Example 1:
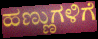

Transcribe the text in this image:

ಹಣ್ಣುಗಳಿಗೆ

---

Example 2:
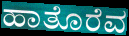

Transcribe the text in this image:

ಹಾತೊರೆವ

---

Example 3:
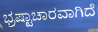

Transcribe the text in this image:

ಭ್ರಷ್ಟಾಚಾರವಾಗಿದೆ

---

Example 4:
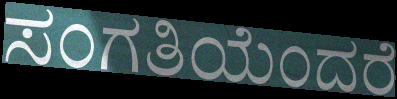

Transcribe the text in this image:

ಸಂಗತಿಯೆಂದರೆ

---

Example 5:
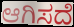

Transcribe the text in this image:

ಆಗಿಸದೆ